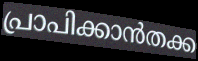
പ്രാപിക്കാൻതക്ക